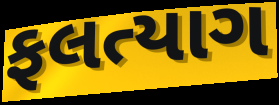
ફલત્યાગ